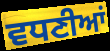
ਵਧਣੀਆਂ